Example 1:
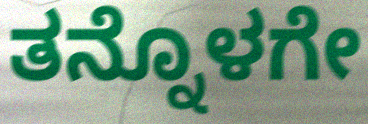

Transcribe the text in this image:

ತನ್ನೊಳಗೇ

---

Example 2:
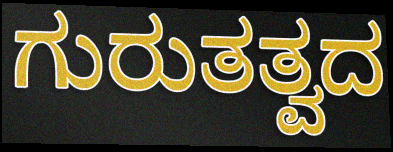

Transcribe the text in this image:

ಗುರುತತ್ವದ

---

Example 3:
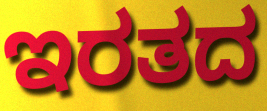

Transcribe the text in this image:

ಇರತದ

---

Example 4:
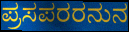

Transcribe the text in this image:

ಪ್ರಸಪರರನುನ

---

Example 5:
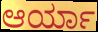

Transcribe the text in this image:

ಆರ್ಯಾ